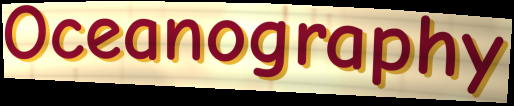
Oceanography